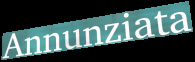
Annunziata